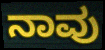
ನಾವು